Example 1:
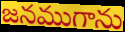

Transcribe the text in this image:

జనముగాను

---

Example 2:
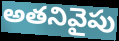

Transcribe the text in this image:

అతనివైపు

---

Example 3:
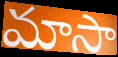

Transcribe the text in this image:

మాసా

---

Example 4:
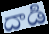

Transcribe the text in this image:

దాడి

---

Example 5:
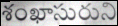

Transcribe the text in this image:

శంఖాసురుని